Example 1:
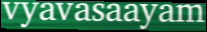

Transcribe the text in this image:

vyavasaayam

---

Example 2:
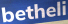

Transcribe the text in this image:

betheli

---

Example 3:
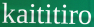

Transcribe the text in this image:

kaititiro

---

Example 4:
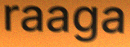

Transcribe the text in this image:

raaga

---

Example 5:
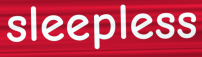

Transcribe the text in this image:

sleepless